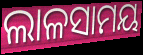
ଲାଳସାମୟ